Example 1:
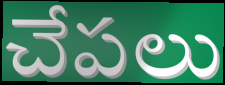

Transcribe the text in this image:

చేపలు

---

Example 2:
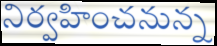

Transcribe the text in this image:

నిర్వహించనున్న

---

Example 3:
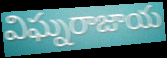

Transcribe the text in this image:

విఘ్నరాజాయ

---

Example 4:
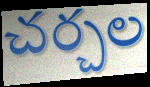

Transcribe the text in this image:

చర్చల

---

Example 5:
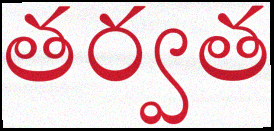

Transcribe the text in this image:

తర్వత